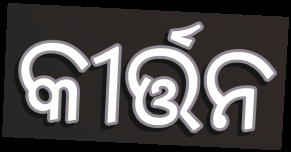
କୀର୍ତ୍ତନ